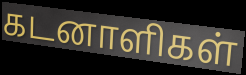
கடனாளிகள்